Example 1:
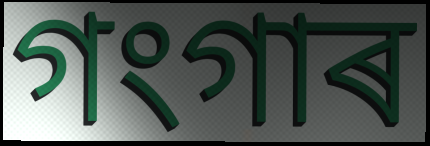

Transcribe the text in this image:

গংগাৰ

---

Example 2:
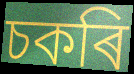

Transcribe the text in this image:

চকৰি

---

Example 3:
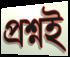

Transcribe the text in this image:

প্ৰশ্নই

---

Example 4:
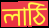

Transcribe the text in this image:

লাঠি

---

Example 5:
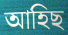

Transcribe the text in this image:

আহিছ